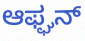
ಆಫ್ಘನ್